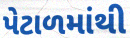
પેટાળમાંથી